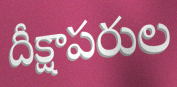
దీక్షాపరుల